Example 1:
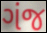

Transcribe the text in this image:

ગંજ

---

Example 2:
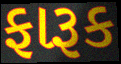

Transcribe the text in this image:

ફારૂક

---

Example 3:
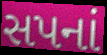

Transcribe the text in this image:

સપનાં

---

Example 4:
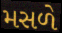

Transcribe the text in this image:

મસળે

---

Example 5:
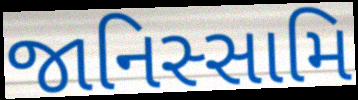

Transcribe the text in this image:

જાનિસ્સામિ